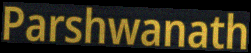
Parshwanath